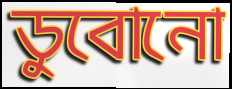
ডুবোনো